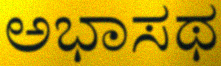
ಅಭಾಸಥ